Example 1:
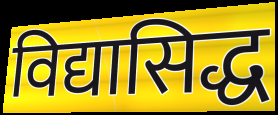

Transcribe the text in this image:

विद्यासिद्ध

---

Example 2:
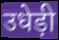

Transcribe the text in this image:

उधेड़ी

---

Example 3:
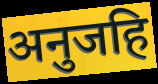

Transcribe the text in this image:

अनुजहि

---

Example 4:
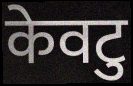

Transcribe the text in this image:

केवटु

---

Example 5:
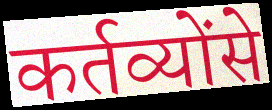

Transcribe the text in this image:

कर्तव्योंसे